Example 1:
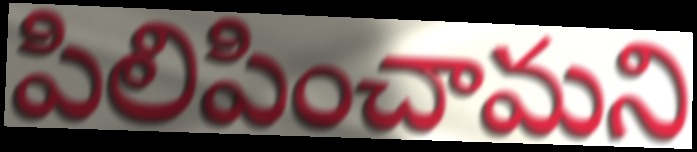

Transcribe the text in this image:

పిలిపించామని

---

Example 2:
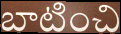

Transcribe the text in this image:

బాటించి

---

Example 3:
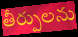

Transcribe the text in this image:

తీర్పులను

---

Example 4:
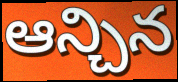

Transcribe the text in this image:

ఆన్చిన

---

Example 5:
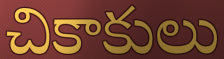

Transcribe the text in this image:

చికాకులు